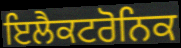
ਇਲੈਕਟਰੋਨਿਕ